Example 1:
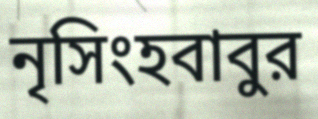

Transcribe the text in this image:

নৃসিংহবাবুর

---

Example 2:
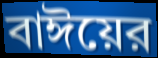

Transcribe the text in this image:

বাঈয়ের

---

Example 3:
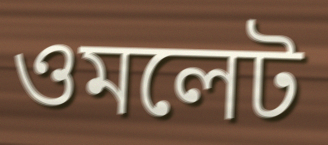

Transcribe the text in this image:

ওমলেট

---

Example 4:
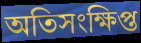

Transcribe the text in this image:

অতিসংক্ষিপ্ত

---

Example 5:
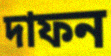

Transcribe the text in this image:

দাফন